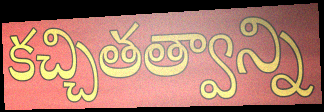
కచ్చితత్వాన్ని